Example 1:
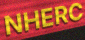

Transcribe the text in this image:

NHERC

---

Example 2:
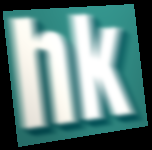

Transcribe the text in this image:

hk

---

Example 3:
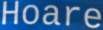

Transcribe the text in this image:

Hoare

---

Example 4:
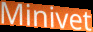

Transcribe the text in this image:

Minivet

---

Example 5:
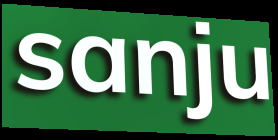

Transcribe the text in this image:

sanju